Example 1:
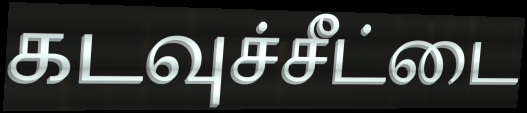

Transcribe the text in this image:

கடவுச்சீட்டை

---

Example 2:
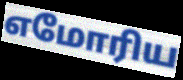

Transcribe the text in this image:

எமோரிய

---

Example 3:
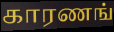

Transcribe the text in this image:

காரணங்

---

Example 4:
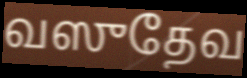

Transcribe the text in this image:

வஸுதேவ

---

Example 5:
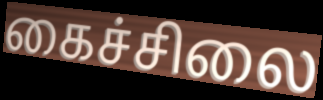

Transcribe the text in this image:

கைச்சிலை